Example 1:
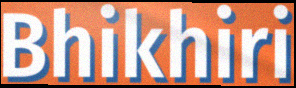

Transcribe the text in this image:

Bhikhiri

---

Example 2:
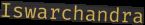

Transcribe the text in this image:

Iswarchandra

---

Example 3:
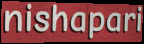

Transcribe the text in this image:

nishapari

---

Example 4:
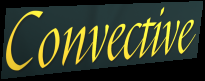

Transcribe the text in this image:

Convective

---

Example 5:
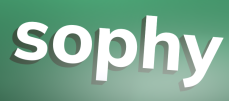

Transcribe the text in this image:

sophy